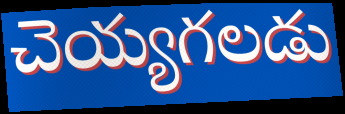
చెయ్యగలడు